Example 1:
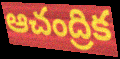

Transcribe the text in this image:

ఆచంద్రిక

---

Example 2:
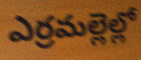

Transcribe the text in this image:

ఎర్రమల్లెల్లో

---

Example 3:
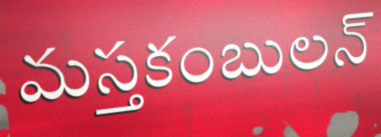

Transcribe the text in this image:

మస్తకంబులన్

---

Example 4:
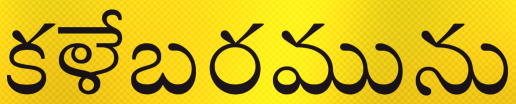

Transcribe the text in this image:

కళేబరమును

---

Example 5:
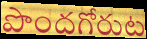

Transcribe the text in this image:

పొందగోరుట